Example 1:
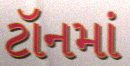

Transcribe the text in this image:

ટૉનમાં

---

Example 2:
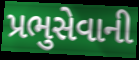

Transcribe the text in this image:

પ્રભુસેવાની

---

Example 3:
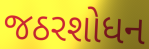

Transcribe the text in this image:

જઠરશોધન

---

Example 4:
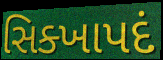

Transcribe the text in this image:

સિક્ખાપદં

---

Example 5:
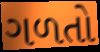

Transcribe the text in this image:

ગળતો